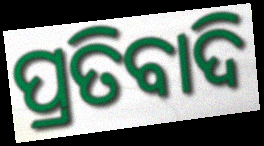
ପ୍ରତିବାଦି